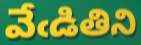
వేఁడితిని